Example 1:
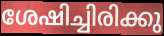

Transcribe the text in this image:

ശേഷിച്ചിരിക്കു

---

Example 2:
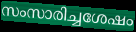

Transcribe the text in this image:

സംസാരിച്ചശേഷം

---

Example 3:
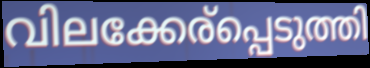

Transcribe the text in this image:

വിലക്കേര്പ്പെടുത്തി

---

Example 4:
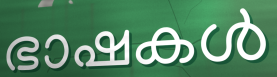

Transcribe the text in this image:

ഭാഷകൾ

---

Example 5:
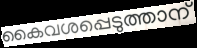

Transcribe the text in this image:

കൈവശപ്പെടുത്താന്